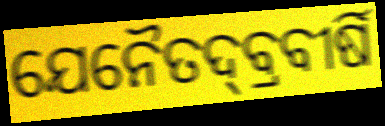
ଯେନୈତଦ୍‌ବ୍ରବୀର୍ଷି